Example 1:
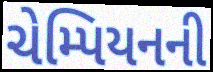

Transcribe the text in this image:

ચેમ્પિયનની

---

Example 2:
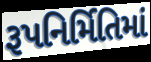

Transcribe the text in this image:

રૂપનિર્મિતિમાં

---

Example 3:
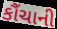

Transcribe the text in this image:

કૌંચાની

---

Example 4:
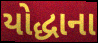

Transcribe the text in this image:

યોદ્ધાના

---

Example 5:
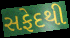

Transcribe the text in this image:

સફેદથી